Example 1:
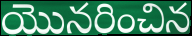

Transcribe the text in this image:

యొనరించిన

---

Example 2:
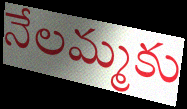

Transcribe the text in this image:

నేలమ్మకు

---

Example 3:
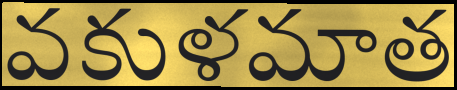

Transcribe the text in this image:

వకుళమాత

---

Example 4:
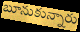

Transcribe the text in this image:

బూనుకున్నారు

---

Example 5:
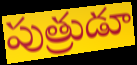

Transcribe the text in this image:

పుత్రుడూ